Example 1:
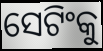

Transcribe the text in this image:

ସେଟିଂକୁ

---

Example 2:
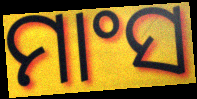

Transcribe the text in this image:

ମାଂସ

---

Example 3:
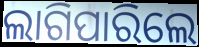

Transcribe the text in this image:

ଲାଗିପାରିଲେ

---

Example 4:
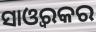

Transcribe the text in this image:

ସାଓ୍ୱରକର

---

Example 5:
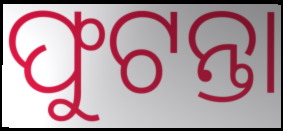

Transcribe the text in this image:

ଫୁଟନ୍ତା